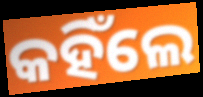
କହିଁଲେ